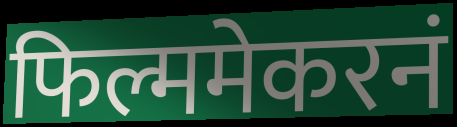
फिल्ममेकरनं